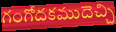
గంగోదకముదెచ్చి